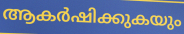
ആകർഷിക്കുകയും